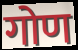
गोण